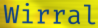
Wirral